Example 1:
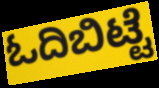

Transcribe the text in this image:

ಓದಿಬಿಟ್ಟೆ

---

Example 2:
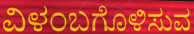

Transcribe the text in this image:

ವಿಳಂಬಗೊಳಿಸುವ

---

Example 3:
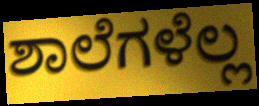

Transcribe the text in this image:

ಶಾಲೆಗಳೆಲ್ಲ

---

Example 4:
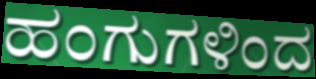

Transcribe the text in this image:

ಹಂಗುಗಳಿಂದ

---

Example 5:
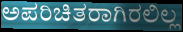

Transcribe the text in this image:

ಅಪರಿಚಿತರಾಗಿರಲಿಲ್ಲ